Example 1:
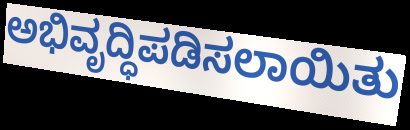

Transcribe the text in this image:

ಅಭಿವೃದ್ಧಿಪಡಿಸಲಾಯಿತು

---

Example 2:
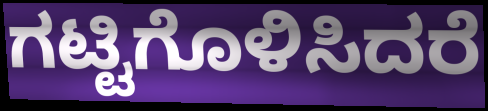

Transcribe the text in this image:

ಗಟ್ಟಿಗೊಳಿಸಿದರೆ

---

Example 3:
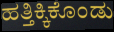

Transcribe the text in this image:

ಹತ್ತಿಕ್ಕಿಕೊಂಡು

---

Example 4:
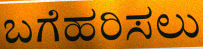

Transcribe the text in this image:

ಬಗೆಹರಿಸಲು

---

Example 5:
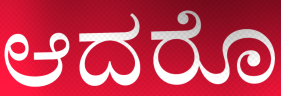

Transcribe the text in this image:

ಆದರೊ